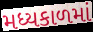
મધ્યકાળમાં